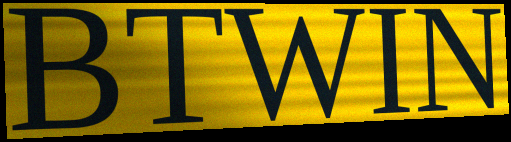
BTWIN